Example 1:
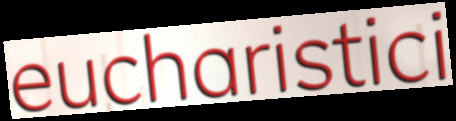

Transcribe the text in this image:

eucharistici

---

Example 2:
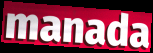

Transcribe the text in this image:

manada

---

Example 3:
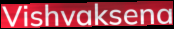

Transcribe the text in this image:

Vishvaksena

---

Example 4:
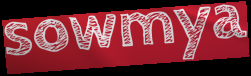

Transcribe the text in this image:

sowmya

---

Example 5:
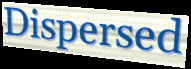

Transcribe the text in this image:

Dispersed